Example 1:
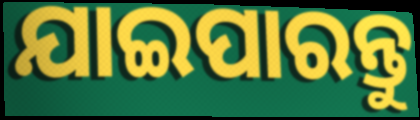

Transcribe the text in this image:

ଯାଇପାରନ୍ତୁ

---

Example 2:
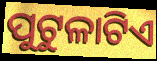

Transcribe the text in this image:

ପୁଟୁଳାଟିଏ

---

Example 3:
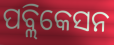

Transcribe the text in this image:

ପବ୍ଲିକେସନ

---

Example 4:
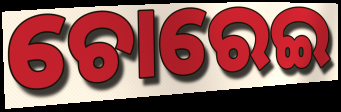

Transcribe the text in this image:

ଚୋରେଇ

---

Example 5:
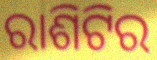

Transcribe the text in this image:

ରାଶିଟିର